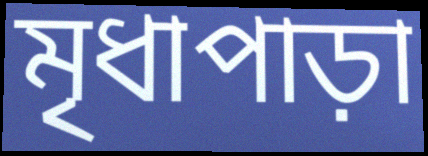
মৃধাপাড়া